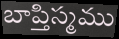
బాప్తిస్మము